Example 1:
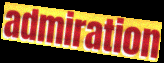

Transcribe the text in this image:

admiration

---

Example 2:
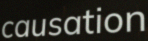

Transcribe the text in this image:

causation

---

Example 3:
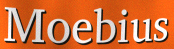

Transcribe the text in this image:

Moebius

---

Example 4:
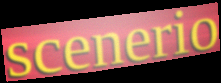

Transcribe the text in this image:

scenerio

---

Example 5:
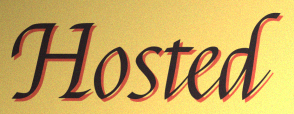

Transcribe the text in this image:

Hosted